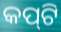
କପ୍‌ଟି